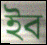
ইব